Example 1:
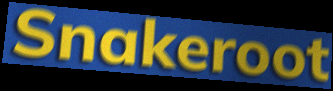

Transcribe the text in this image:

Snakeroot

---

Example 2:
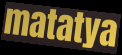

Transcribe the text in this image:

matatya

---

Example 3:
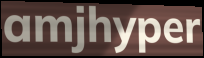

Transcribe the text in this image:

amjhyper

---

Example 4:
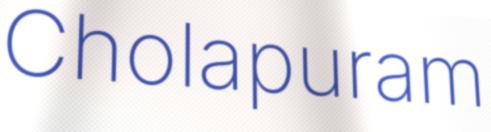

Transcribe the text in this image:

Cholapuram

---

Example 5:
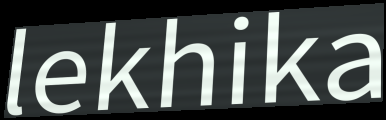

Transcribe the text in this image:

lekhika